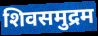
शिवसमुद्रम